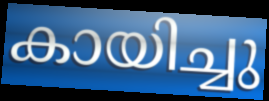
കായിച്ചു